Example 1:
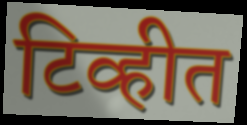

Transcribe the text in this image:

टिव्हीत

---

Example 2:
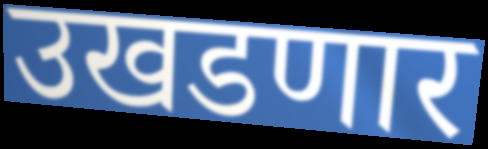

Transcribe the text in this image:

उखडणार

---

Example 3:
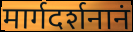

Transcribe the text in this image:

मार्गदर्शनानं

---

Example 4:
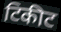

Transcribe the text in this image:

टिकीट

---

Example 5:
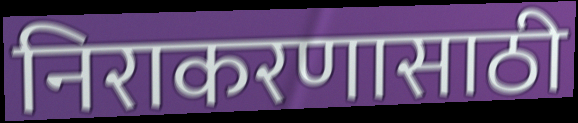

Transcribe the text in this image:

निराकरणासाठी